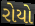
રોયો